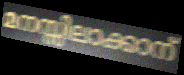
മനസ്സിലാക്കാന്